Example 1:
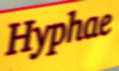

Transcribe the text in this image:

Hyphae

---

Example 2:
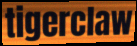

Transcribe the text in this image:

tigerclaw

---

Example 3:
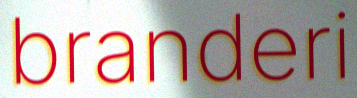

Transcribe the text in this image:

branderi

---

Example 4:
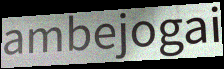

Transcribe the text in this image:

ambejogai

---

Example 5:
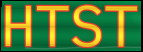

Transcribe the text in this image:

HTST